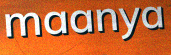
maanya